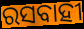
ରସବାହୀ